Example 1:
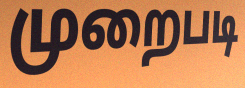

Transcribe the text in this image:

முறைபடி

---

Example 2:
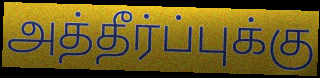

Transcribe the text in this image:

அத்தீர்ப்புக்கு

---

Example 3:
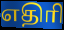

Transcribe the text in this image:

எதிரி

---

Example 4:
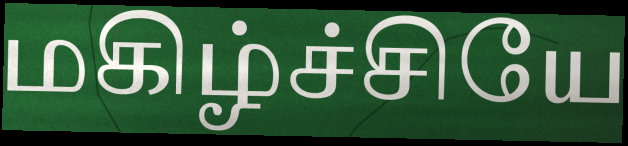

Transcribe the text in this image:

மகிழ்ச்சியே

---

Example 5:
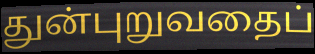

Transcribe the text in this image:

துன்புறுவதைப்